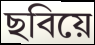
ছবিয়ে